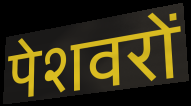
पेशवरों